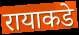
रायाकडे